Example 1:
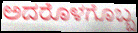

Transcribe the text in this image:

ಅದರೊಳಗೊಬ್ಬ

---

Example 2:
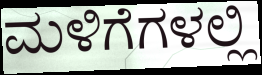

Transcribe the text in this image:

ಮಳಿಗೆಗಳಲ್ಲಿ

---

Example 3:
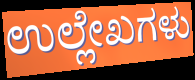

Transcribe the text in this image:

ಉಲ್ಲೇಖಗಳು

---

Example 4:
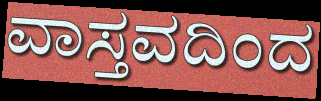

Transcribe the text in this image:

ವಾಸ್ತವದಿಂದ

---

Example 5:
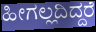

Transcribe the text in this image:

ಹೀಗಲ್ಲದಿದ್ದರೆ